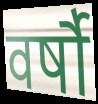
वर्षौ